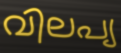
വിലപ്യ